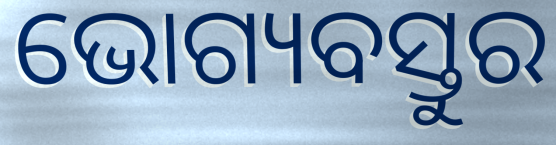
ଭୋଗ୍ୟବସ୍ତୁର